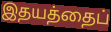
இதயத்தைப்